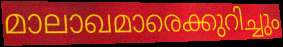
മാലാഖമാരെക്കുറിച്ചും